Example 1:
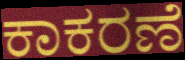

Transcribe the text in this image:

ಕಾಕರಣೆ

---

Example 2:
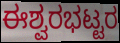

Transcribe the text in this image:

ಈಶ್ವರಭಟ್ಟರ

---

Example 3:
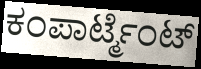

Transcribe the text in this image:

ಕಂಪಾರ್ಟ್ಮೆಂಟ್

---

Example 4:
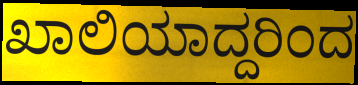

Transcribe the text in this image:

ಖಾಲಿಯಾದ್ದರಿಂದ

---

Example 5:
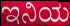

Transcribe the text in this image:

ಇನಿಯ